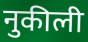
नुकीली